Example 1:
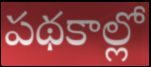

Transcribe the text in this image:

పథకాల్లో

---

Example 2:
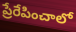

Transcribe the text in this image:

ప్రేరేపించాలో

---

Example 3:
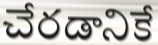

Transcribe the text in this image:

చేరడానికే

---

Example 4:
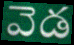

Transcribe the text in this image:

వెడ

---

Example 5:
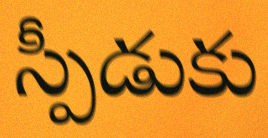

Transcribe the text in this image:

స్పీడుకు